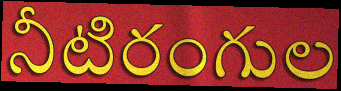
నీటిరంగుల